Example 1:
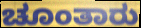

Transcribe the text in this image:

ಚೂಂತಾರು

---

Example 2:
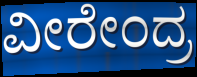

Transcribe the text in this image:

ವೀರೇಂದ್ರ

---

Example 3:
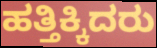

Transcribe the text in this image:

ಹತ್ತಿಕ್ಕಿದರು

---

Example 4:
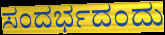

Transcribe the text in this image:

ಸಂದರ್ಭದಂದು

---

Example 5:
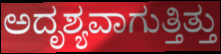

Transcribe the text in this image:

ಅದೃಶ್ಯವಾಗುತ್ತಿತ್ತು